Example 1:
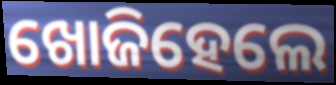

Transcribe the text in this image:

ଖୋଜିହେଲେ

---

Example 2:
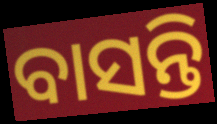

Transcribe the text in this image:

ବାସନ୍ତି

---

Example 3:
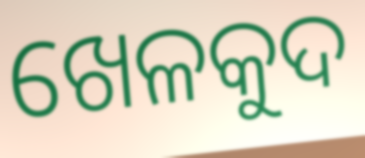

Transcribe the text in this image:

ଖେଳକୁଦ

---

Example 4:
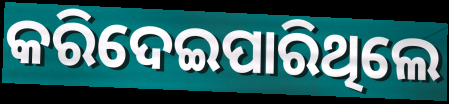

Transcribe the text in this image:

କରିଦେଇପାରିଥିଲେ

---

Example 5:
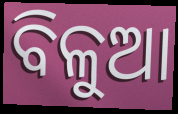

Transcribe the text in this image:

ବିଳୁଆ